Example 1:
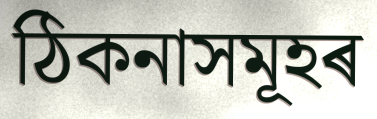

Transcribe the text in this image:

ঠিকনাসমূহৰ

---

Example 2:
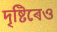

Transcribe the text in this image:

দৃষ্টিৰেও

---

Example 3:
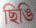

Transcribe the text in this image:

ছিঙি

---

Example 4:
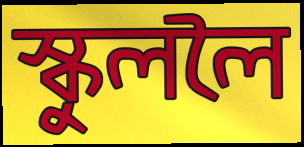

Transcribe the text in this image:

স্কুললৈ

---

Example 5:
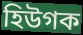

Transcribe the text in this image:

হিউগক